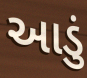
આડું